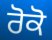
ਰੋਕੋ